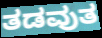
ತಡವುತ